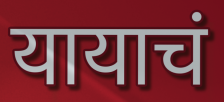
यायाचं